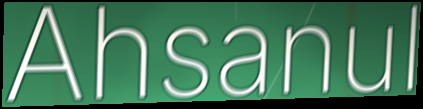
Ahsanul